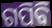
ଗପିବି